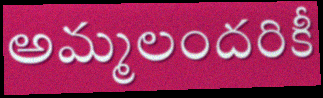
అమ్మలందరికీ